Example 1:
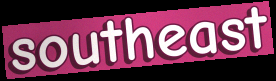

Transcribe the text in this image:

southeast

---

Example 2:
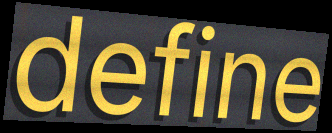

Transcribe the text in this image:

define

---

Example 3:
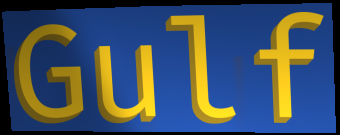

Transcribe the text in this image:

Gulf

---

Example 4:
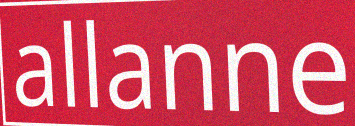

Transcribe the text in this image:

allanne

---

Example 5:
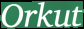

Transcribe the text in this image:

Orkut